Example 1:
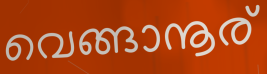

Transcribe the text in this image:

വെങ്ങാനൂര്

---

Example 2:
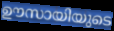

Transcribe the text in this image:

ഊസായിയുടെ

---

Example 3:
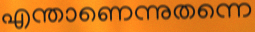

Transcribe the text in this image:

എന്താണെന്നുതന്നെ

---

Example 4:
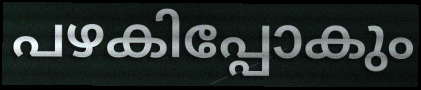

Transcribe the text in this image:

പഴകിപ്പോകും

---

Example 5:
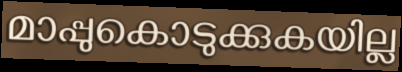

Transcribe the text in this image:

മാപ്പുകൊടുക്കുകയില്ല